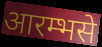
आरम्भसे